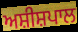
ਅਸ਼ੀਸ਼ਪਾਲ